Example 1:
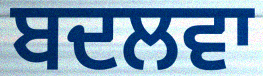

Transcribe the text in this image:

ਬਦਲਵਾ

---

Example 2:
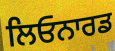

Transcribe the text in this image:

ਲਿਓਨਾਰਡ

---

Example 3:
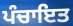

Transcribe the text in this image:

ਪੰਚਾਇਤ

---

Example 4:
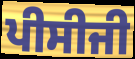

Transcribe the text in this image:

ਪੀਸੀਜੀ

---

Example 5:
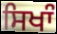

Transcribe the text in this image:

ਸਿਖਾੰ